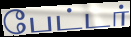
பேட்டர்